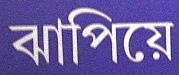
ঝাপিয়ে